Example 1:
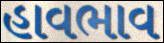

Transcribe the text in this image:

હાવભાવ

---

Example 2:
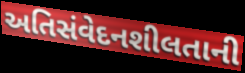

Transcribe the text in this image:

અતિસંવેદનશીલતાની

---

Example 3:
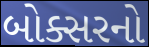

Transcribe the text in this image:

બોક્સરનો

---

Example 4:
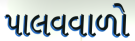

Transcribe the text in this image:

પાલવવાળો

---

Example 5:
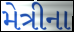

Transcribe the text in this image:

મેત્રીના